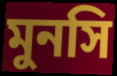
মুনসি